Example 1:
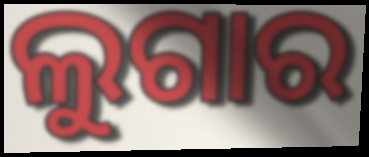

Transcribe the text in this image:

ଲୁଗାର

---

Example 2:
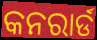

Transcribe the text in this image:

କନରାର୍ଡ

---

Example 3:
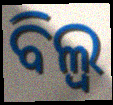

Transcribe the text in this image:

ବିଲ୍ଵ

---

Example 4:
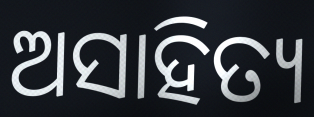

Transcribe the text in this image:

ଅସାହିତ୍ୟ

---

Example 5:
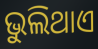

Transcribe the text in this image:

ଭୁଲିଥାଏ